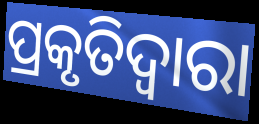
ପ୍ରକୃତିଦ୍ୱାରା